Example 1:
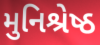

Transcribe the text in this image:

મુનિશ્રેષ્ઠ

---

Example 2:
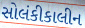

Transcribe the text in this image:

સોલંકીકાલીન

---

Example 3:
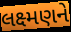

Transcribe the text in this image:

લક્ષ્મણને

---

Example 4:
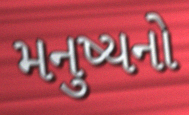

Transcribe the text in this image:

મનુષ્યનો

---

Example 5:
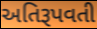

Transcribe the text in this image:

અતિરૂપવતી